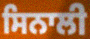
ਸਿਨਾਲੀ